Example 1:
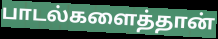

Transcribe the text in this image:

பாடல்களைத்தான்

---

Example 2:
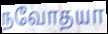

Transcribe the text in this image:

நவோதயா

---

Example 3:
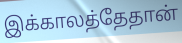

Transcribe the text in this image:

இக்காலத்தேதான்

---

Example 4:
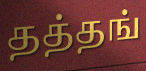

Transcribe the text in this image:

தத்தங்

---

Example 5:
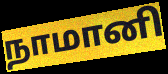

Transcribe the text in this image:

நாமானி